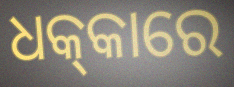
ଧକ୍‌କାରେ